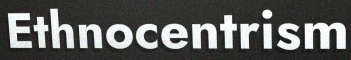
Ethnocentrism